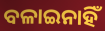
ବଳାଇନାହିଁ